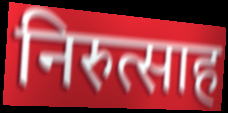
निरुत्साह